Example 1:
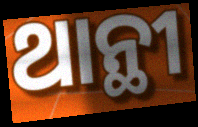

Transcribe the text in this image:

ଥାନ୍ଥୀ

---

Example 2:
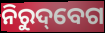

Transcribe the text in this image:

ନିରୁଦ୍‌ବେଗ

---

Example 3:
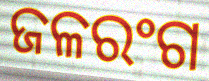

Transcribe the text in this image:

ଜଳରଂଗ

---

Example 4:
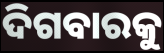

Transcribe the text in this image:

ଦିଗବାରକୁ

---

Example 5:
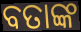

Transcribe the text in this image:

ବତାଙ୍କ